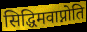
सिद्धिमवाप्नोति